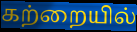
கற்றையில்